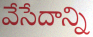
వేసేదాన్ని